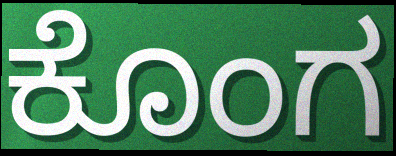
ಕೊಂಗ